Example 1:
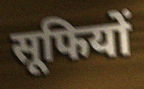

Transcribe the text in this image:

सूफियों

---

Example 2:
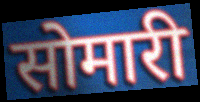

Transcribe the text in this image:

सोमारी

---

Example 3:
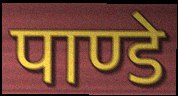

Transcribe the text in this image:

पाण्डे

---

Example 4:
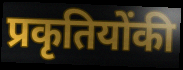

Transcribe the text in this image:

प्रकृतियोंकी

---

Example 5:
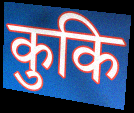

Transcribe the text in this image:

कुकि